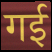
गई